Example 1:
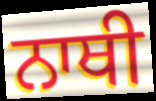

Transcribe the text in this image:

ਨਾਥੀ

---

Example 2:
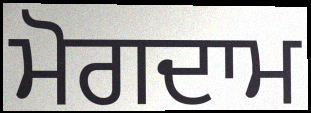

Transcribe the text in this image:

ਮੋਗਦਾਮ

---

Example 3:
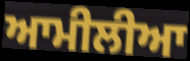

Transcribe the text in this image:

ਆਮੀਲੀਆ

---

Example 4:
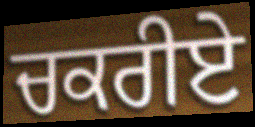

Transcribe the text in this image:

ਚਕਰੀਏ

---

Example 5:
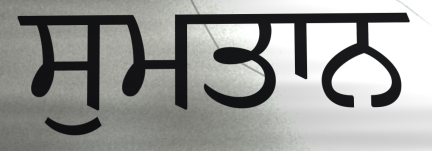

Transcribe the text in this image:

ਸੁਮਤਾਨ